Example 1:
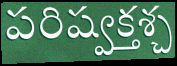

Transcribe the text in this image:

పరిష్వక్తశ్చ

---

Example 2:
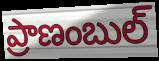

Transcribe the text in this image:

ప్రాణంబుల్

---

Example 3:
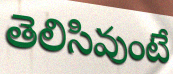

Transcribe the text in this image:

తెలిసివుంటే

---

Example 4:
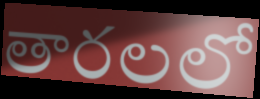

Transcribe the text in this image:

తారలలో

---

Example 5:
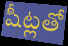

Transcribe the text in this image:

షీట్లతో